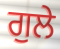
ਗੁਲੇ